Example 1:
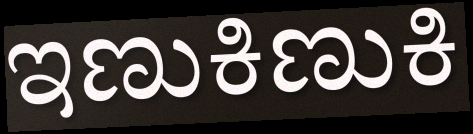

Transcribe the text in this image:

ಇಣುಕಿಣುಕಿ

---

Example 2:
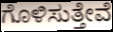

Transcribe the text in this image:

ಗೊಳಿಸುತ್ತೇವೆ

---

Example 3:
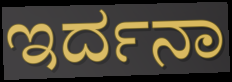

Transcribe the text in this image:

ಇರ್ದನಾ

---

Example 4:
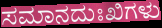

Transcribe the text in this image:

ಸಮಾನದುಃಖಿಗಳು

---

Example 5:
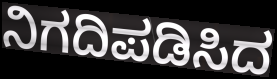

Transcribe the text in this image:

ನಿಗದಿಪಡಿಸಿದ